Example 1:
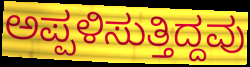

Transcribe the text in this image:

ಅಪ್ಪಳಿಸುತ್ತಿದ್ದವು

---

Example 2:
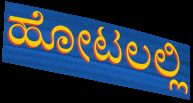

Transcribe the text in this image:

ಹೋಟಲಲ್ಲಿ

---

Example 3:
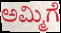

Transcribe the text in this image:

ಅಮ್ಮಿಗೆ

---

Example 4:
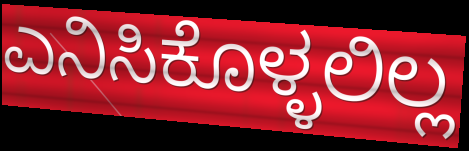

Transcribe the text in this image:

ಎನಿಸಿಕೊಳ್ಳಲಿಲ್ಲ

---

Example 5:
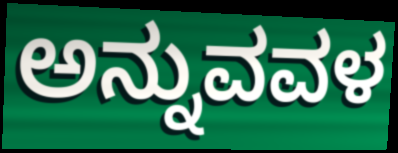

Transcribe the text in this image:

ಅನ್ನುವವಳ